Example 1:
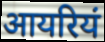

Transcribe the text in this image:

आयरियं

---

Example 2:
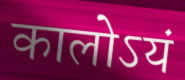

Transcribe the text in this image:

कालोऽयं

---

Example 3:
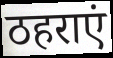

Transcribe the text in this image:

ठहराएं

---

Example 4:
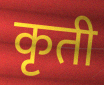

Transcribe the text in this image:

कृती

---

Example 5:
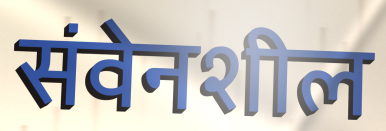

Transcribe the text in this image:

संवेनशील